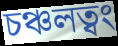
চঞ্চলত্বং